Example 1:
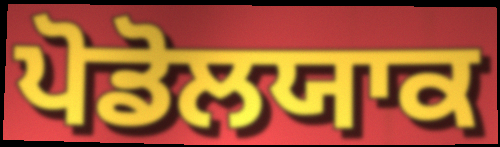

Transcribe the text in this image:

ਪੋਡੋਲਯਾਕ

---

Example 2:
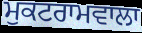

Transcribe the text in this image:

ਮੁਕਟਰਾਮਵਾਲਾ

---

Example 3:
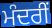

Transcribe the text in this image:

ਮੰਦਰੀਂ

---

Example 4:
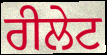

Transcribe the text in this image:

ਰੀਲੇਟ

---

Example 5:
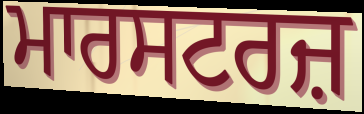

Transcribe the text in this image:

ਮਾਰਸਟਰਜ਼